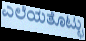
ಎಲೆಯತೊಟ್ಟು